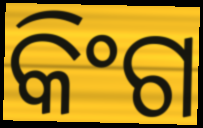
କିଂଗ